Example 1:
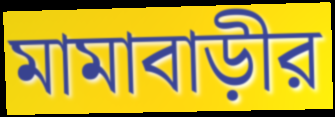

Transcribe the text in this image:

মামাবাড়ীর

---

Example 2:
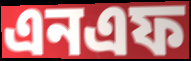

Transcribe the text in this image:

এনএফ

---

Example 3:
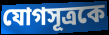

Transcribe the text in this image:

যোগসূত্রকে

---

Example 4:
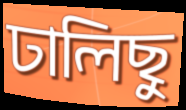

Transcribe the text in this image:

ঢালিছু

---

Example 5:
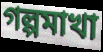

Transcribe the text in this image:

গল্পমাখা